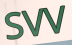
SVV